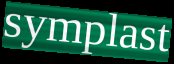
symplast